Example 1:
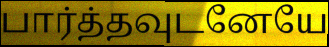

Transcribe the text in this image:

பார்த்தவுடனேயே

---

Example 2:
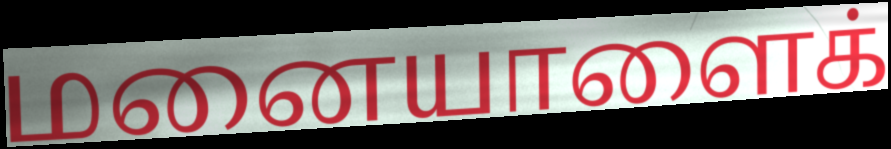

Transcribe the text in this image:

மனையாளைக்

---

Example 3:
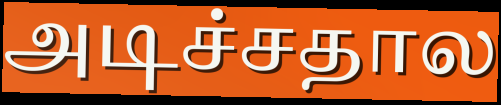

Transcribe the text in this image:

அடிச்சதால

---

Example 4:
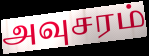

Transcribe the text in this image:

அவுசரம்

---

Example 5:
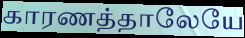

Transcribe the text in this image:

காரணத்தாலேயே